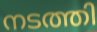
നടത്തി